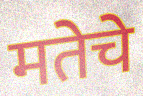
मतेचे